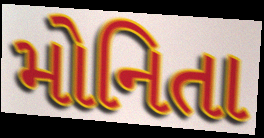
મોનિતા